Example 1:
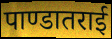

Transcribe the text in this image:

पाण्डातराई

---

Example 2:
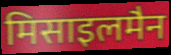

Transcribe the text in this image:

मिसाइलमैन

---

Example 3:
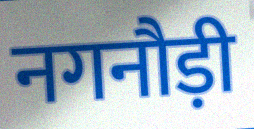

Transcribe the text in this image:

नगनौड़ी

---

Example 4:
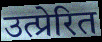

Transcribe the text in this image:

उत्‍प्रेरित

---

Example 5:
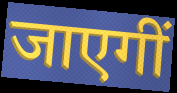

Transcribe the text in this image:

जाएगीं